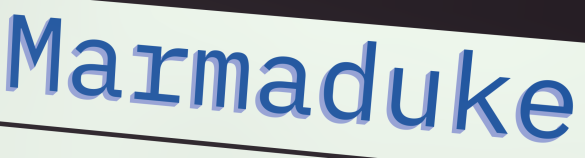
Marmaduke